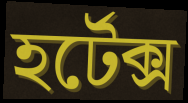
হর্টেক্স